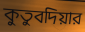
কুতুবদিয়ার